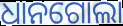
ଧାନଗୋଲା